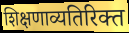
शिक्षणाव्यतिरिक्त